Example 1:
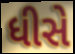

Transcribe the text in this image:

ધીસે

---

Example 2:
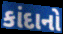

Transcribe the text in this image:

કાંદાનો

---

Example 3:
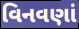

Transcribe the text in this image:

વિનવણાં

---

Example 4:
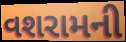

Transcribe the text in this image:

વશરામની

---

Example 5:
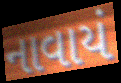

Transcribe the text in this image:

નાવાયં